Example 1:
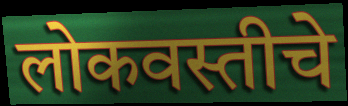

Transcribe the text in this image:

लोकवस्तीचे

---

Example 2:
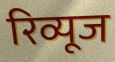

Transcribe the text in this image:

रिव्यूज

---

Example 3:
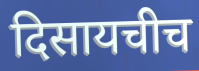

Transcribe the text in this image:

दिसायचीच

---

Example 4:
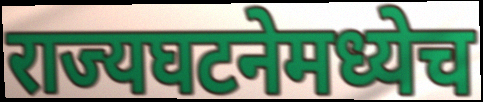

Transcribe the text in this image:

राज्यघटनेमध्येच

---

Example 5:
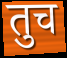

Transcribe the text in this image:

तुच